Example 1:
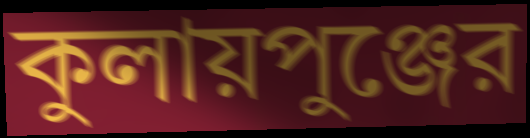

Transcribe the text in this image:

কুলায়পুঞ্জের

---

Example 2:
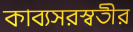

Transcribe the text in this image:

কাব্যসরস্বতীর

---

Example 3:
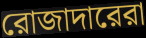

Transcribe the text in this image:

রোজাদারেরা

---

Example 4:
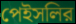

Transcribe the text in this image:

পেইসলির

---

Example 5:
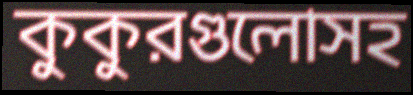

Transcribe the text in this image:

কুকুরগুলোসহ